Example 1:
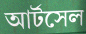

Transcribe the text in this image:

আর্টসেল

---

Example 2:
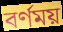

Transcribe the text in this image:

বর্ণময়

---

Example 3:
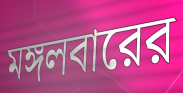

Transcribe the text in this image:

মঙ্গলবারের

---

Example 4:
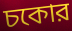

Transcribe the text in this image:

চকোর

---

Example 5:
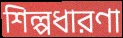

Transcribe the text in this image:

শিল্পধারণা